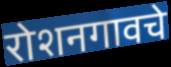
रोशनगावचे